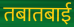
तबातबाई